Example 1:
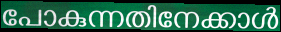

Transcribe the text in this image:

പോകുന്നതിനേക്കാൾ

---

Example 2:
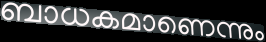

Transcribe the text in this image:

ബാധകമാണെന്നും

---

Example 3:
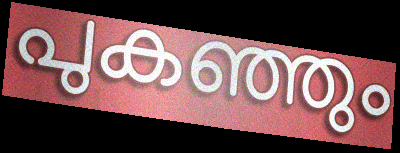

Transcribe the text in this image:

പുകഞ്ഞും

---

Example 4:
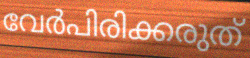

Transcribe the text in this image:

വേർപിരിക്കരുത്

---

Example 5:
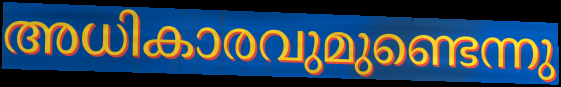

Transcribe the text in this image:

അധികാരവുമുണ്ടെന്നു